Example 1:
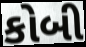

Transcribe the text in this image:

કોબી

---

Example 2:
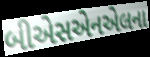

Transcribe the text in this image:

બીએસએનએલના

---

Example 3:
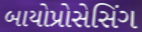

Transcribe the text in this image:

બાયોપ્રોસેસિંગ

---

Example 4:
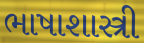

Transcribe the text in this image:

ભાષાશાસ્ત્રી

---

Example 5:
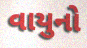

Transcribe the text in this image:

વાયુનો